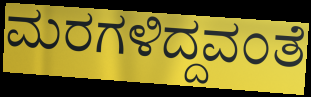
ಮರಗಳಿದ್ದವಂತೆ